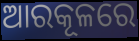
ଆରକୂଳରେ